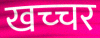
खच्‍चर